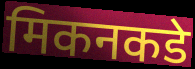
मिकनकडे